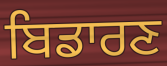
ਬਿਡਾਰਣ